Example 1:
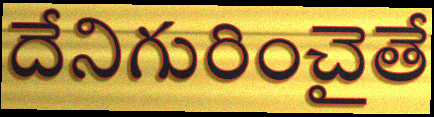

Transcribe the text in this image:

దేనిగురించైతే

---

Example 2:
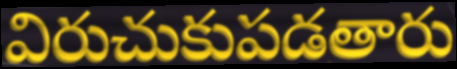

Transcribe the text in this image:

విరుచుకుపడతారు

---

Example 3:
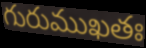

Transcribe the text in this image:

గురుముఖతః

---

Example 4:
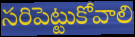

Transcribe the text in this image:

సరిపెట్టుకోవాలి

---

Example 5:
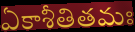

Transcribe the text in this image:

ఏకాశీతితమః